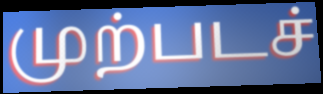
முற்படச்